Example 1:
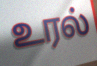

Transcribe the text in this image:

உரல்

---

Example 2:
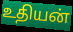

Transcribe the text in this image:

உதியன்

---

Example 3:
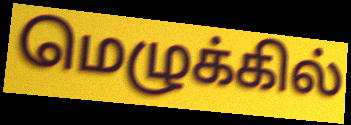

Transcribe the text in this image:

மெழுக்கில்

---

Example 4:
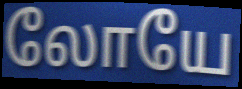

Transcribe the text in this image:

லோயே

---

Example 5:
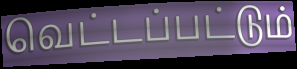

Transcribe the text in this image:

வெட்டப்பட்டும்